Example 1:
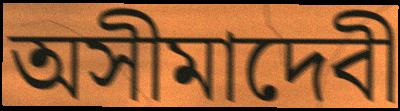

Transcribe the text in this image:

অসীমাদেবী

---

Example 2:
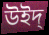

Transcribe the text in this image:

উইদ্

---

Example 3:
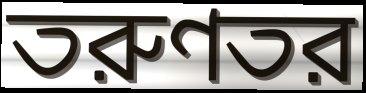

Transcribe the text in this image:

তরুণতর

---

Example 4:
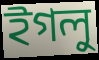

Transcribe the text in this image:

ইগলু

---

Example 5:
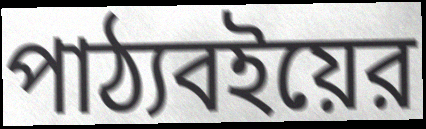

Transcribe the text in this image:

পাঠ্যবইয়ের